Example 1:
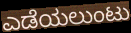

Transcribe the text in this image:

ಎಡೆಯಲುಂಟು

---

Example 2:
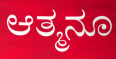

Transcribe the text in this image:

ಆತ್ಮನೂ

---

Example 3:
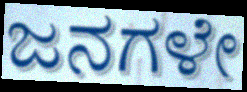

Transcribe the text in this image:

ಜನಗಳೇ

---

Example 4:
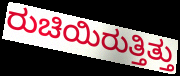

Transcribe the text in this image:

ರುಚಿಯಿರುತ್ತಿತ್ತು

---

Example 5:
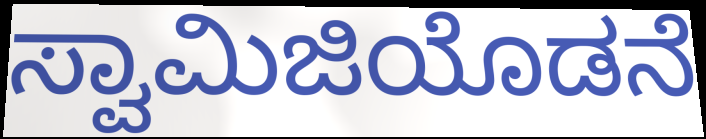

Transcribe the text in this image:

ಸ್ವಾಮಿಜಿಯೊಡನೆ